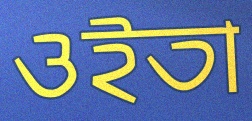
ওইতা